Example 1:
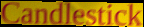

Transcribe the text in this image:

Candlestick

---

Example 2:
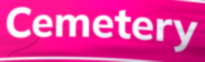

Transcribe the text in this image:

Cemetery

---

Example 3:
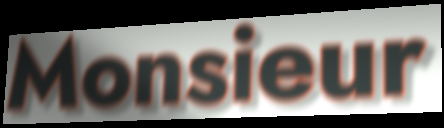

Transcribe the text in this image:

Monsieur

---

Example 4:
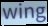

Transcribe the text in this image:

wing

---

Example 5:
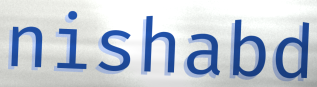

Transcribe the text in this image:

nishabd